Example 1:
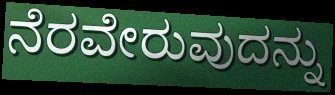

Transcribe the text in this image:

ನೆರವೇರುವುದನ್ನು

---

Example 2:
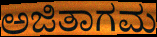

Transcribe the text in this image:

ಅಜಿತಾಗಮ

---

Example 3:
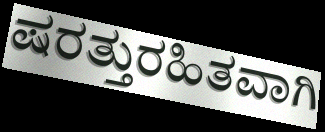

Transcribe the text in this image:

ಷರತ್ತುರಹಿತವಾಗಿ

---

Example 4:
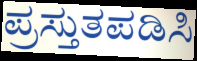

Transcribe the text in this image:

ಪ್ರಸ್ತುತಪಡಿಸಿ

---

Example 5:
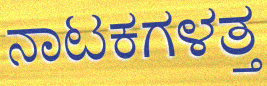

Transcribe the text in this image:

ನಾಟಕಗಳತ್ತ